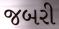
જબરી